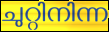
ചുറ്റിനിന്ന